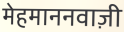
मेहमाननवाज़ी